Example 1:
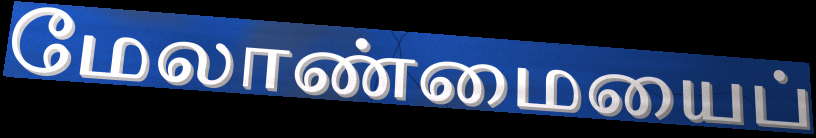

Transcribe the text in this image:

மேலாண்மையைப்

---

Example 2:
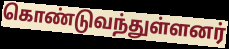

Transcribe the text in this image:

கொண்டுவந்துள்ளனர்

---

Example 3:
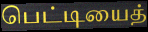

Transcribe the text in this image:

பெட்டியைத்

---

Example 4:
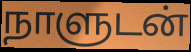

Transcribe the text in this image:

நாளுடன்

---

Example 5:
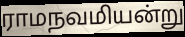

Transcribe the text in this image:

ராமநவமியன்று